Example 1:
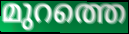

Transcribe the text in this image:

മുറത്തെ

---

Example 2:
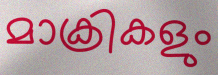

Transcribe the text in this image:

മാക്രികളും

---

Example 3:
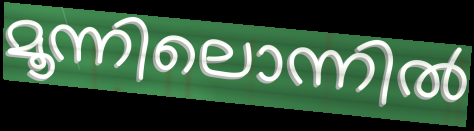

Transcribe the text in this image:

മൂന്നിലൊന്നിൽ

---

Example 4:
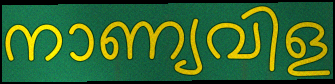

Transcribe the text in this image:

നാണ്യവിള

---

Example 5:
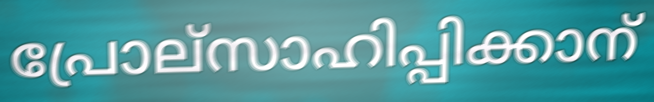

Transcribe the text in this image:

പ്രോല്സാഹിപ്പിക്കാന്